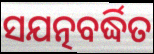
ସଯତ୍ନବର୍ଦ୍ଧିତ